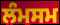
ਲੰਮਸਮ